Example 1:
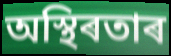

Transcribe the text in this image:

অস্থিৰতাৰ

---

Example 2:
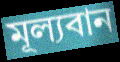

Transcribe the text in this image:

মূল্যবান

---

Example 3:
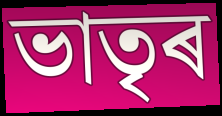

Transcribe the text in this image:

ভাতৃৰ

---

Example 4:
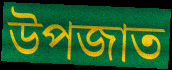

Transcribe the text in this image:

উপজাত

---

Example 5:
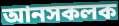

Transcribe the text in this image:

আনসকলক